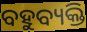
ବହୁବ୍ୟକ୍ତି